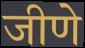
जीणे